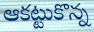
ఆకట్టుకొన్న